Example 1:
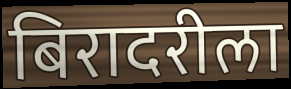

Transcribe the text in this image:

बिरादरीला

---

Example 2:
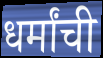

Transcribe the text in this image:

धर्मांची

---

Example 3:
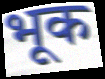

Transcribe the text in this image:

भूक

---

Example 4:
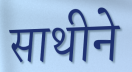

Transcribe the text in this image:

साथीने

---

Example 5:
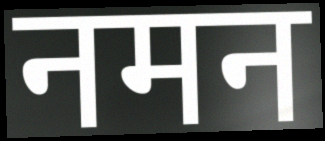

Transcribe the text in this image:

नमन